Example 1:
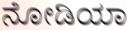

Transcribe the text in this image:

ನೋಡಿಯಾ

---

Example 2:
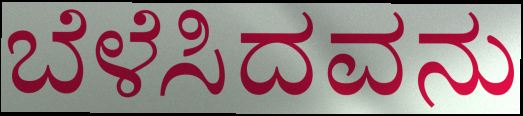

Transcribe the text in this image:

ಬೆಳೆಸಿದವನು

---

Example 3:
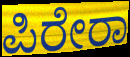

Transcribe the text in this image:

ಪಿರೇರಾ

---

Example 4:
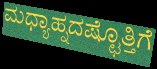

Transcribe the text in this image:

ಮಧ್ಯಾಹ್ನದಷ್ಟೊತ್ತಿಗೆ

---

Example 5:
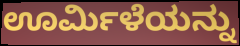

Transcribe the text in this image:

ಊರ್ಮಿಳೆಯನ್ನು